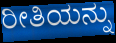
ರೀತಿಯನ್ನು